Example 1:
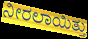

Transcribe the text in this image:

ನೀರಲಾಯಿತ್ತು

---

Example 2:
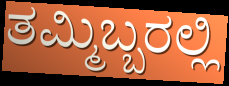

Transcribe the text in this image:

ತಮ್ಮಿಬ್ಬರಲ್ಲಿ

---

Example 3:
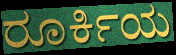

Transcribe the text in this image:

ರೂರ್ಕಿಯ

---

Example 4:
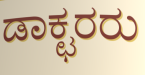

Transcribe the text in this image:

ಡಾಕ್ಟರರು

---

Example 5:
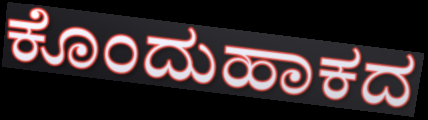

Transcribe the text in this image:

ಕೊಂದುಹಾಕದ